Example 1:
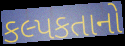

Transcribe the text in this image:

કલ્પકતાનો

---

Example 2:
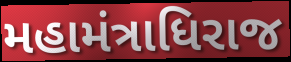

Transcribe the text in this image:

મહામંત્રાધિરાજ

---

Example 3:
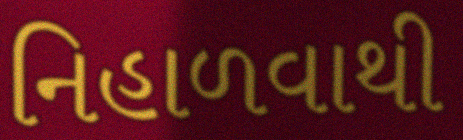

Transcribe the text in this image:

નિહાળવાથી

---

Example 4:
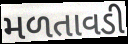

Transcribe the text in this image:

મળતાવડી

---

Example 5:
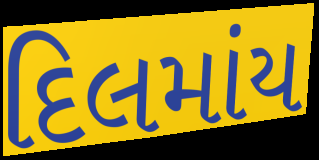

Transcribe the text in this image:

દિલમાંય